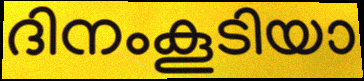
ദിനംകൂടിയാ